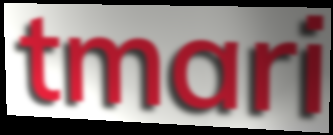
tmari